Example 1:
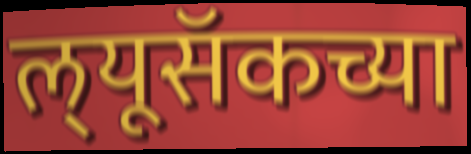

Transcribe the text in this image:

ल्यूसॅकच्या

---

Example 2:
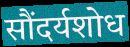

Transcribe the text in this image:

सौंदर्यशोध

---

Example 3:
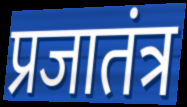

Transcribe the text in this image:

प्रजातंत्र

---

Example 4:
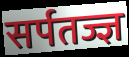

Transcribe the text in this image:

सर्पतज्ज्ञ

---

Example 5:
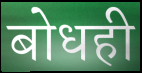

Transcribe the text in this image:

बोधही